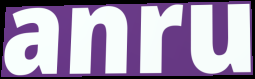
anru